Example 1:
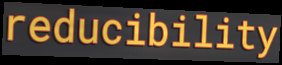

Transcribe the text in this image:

reducibility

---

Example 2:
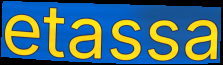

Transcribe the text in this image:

etassa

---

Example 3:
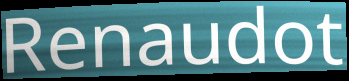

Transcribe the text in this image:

Renaudot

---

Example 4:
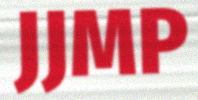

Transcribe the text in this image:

JJMP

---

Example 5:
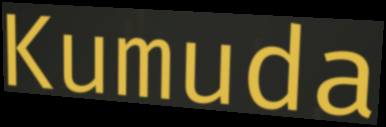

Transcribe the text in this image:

Kumuda